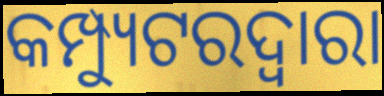
କମ୍ପ୍ୟୁଟରଦ୍ୱାରା